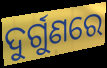
ଦୁର୍ଗୁଣରେ